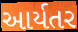
આર્યતર